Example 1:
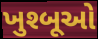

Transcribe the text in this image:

ખુશ્બૂઓ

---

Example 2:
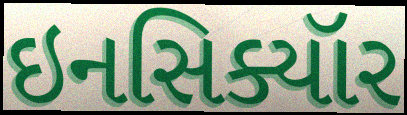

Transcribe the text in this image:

ઇનસિક્યૉર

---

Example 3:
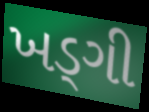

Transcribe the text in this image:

ખડ્ગી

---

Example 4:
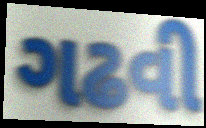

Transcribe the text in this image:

ગઢવી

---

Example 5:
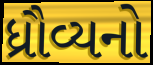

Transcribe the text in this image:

ધ્રૌવ્યનો